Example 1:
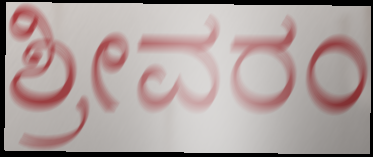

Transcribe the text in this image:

ಶ್ರೀವರಂ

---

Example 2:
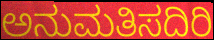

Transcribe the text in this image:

ಅನುಮತಿಸದಿರಿ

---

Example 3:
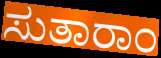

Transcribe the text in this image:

ಸುತಾರಾಂ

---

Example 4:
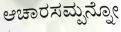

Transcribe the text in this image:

ಆಚಾರಸಮ್ಪನ್ನೋ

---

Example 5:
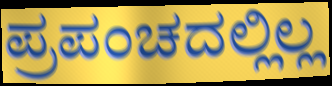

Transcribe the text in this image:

ಪ್ರಪಂಚದಲ್ಲಿಲ್ಲ